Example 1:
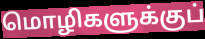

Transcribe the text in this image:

மொழிகளுக்குப்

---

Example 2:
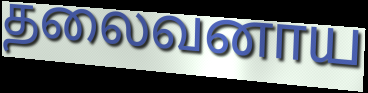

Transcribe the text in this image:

தலைவனாய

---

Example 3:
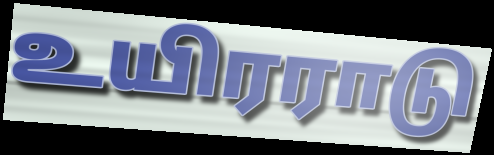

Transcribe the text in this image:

உயிரராடு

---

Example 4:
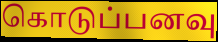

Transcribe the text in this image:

கொடுப்பனவு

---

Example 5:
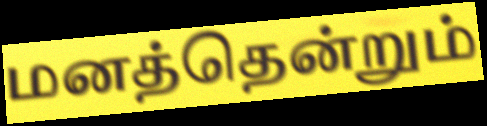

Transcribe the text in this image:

மனத்தென்றும்